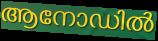
ആനോഡിൽ